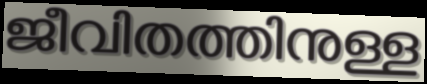
ജീവിതത്തിനുള്ള